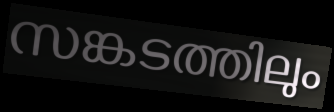
സങ്കടത്തിലും